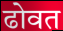
ढोवत